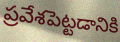
ప్రవేశపెట్టడానికి